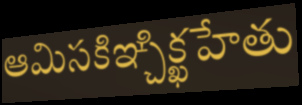
ఆమిసకిఞ్చిక్ఖహేతు